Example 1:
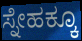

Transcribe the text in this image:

ಸ್ನೇಹಕ್ಕೂ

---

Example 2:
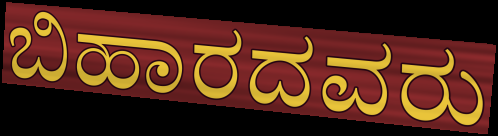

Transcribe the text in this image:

ಬಿಹಾರದವರು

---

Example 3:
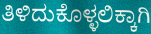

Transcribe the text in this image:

ತಿಳಿದುಕೊಳ್ಳಲಿಕ್ಕಾಗಿ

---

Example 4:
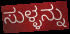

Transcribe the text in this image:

ಸುಳ್ಳನ್ನು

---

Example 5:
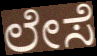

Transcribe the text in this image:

ಲೇಸೆ